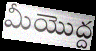
మీయొద్ద